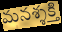
మనశ్శక్తి